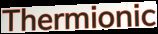
Thermionic